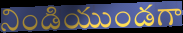
నిండియుండగా